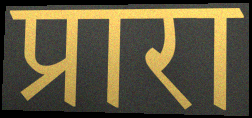
प्रारा